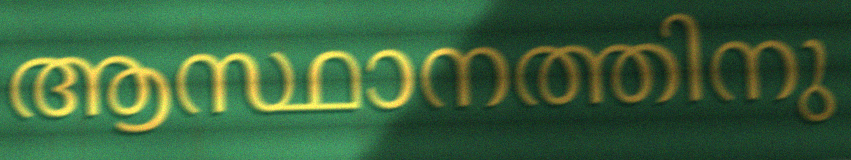
ആസ്ഥാനത്തിനു